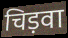
चिड़वा